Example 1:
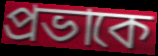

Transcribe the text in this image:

প্রভাকে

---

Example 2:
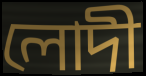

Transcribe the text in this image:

লোদী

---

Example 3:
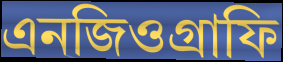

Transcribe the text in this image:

এনজিওগ্রাফি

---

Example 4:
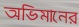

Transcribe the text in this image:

অভিমানের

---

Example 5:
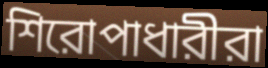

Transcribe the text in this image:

শিরোপাধারীরা